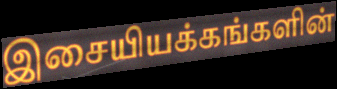
இசையியக்கங்களின்